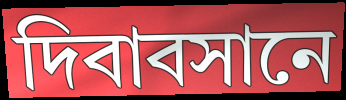
দিবাবসানে